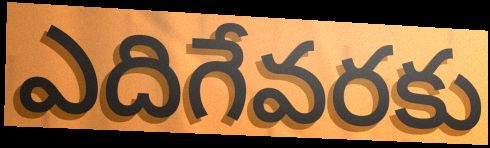
ఎదిగేవరకు